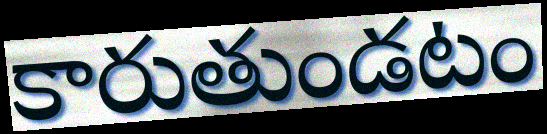
కారుతుండటం